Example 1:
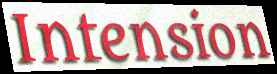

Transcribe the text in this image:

Intension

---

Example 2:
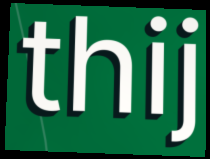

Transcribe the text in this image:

thij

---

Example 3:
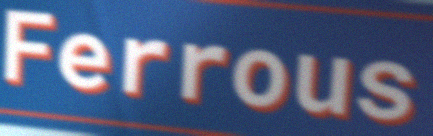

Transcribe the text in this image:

Ferrous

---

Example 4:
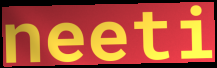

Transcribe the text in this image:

neeti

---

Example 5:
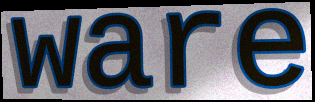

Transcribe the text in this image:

ware